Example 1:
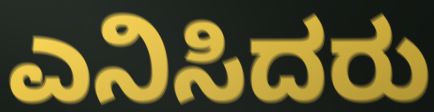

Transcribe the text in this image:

ಎನಿಸಿದರು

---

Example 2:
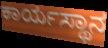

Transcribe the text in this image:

ಕಾರ್ಯಸ್ಥಾನ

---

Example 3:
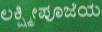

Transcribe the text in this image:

ಲಕ್ಷ್ಮೀಪೂಜೆಯ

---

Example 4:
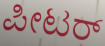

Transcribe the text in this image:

ಪೀಟರ್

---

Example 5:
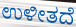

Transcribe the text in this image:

ಉಳೀತದೆ